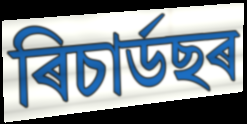
ৰিচাৰ্ডছৰ